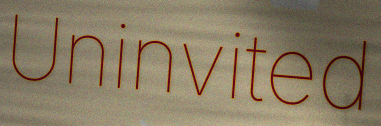
Uninvited